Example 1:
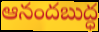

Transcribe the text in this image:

ఆనందబుద్ధ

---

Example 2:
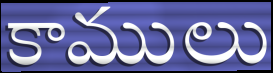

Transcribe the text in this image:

కాములు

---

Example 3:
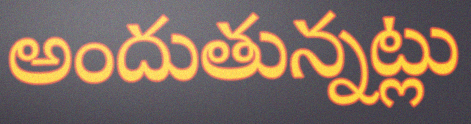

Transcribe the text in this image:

అందుతున్నట్లు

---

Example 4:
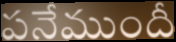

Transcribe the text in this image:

పనేముందీ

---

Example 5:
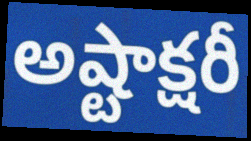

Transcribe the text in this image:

అష్టాక్షరీ